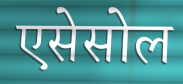
एसेसोल